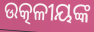
ଉତ୍କଳୀୟଙ୍କ